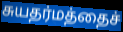
சுயதர்மத்தைச்